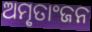
ଅମୃତାଂଜନ